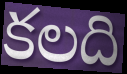
కలది